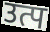
उत्प